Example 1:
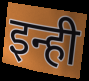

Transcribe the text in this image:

इन्ही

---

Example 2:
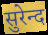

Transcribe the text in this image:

सुरेन्द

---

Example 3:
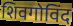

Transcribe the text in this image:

शिवगोविंद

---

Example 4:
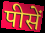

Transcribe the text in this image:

पीसें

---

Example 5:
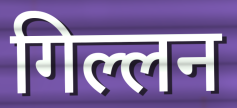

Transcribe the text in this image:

गिल्लन